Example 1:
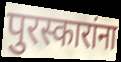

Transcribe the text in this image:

पुरस्कारांना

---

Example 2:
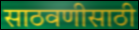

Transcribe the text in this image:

साठवणीसाठी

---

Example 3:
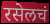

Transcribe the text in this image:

रसेलचं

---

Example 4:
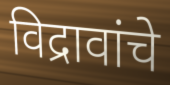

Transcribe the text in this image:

विद्रावांचे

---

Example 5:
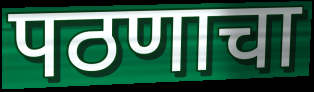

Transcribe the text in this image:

पठणाचा